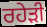
ਰਹੇੜੀ